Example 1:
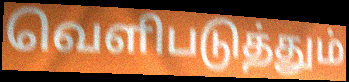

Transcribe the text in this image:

வெளிபடுத்தும்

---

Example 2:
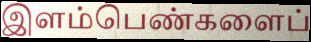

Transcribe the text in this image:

இளம்பெண்களைப்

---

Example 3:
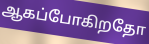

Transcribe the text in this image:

ஆகப்போகிறதோ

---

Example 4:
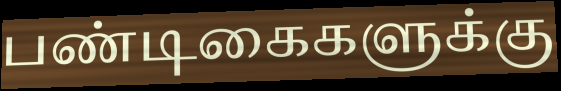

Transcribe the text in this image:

பண்டிகைகளுக்கு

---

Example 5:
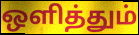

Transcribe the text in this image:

ஒளித்தும்